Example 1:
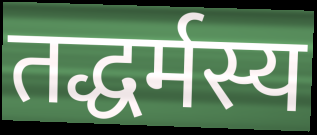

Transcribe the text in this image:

तद्धर्मस्य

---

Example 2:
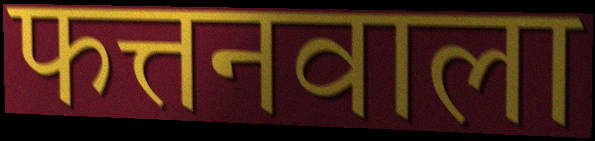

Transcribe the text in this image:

फत्तनवाला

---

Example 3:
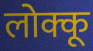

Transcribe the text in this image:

लोक्कू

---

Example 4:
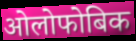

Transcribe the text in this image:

ओलोफोबिक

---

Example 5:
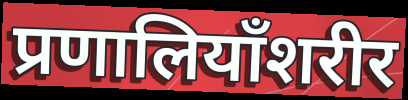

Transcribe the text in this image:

प्रणालियाँशरीर